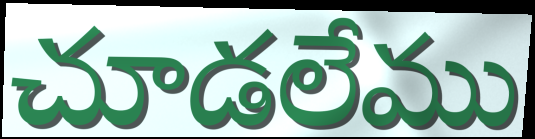
చూడలేము